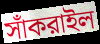
সাঁকরাইল